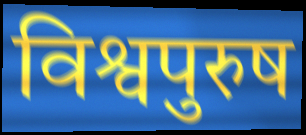
विश्वपुरुष